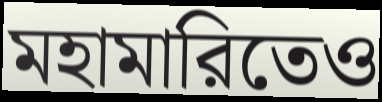
মহামারিতেও